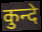
कुन्दे